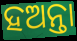
ହଅନ୍ତା